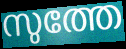
സുത്തേ